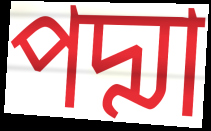
পদ্মা